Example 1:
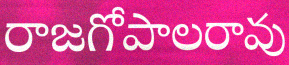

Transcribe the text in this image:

రాజగోపాలరావు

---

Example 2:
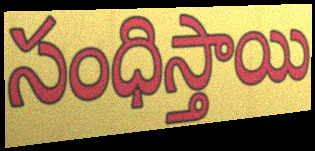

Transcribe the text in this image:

సంధిస్తాయి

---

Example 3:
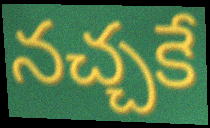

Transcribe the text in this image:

నచ్చకే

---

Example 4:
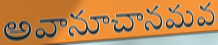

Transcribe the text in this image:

అవానూచానమవ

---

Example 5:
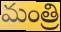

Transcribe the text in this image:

మంత్రి